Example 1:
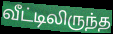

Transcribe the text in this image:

வீட்டிலிருந்த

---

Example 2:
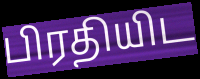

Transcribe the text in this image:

பிரதியிட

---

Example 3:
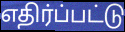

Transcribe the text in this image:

எதிர்ப்பட்டு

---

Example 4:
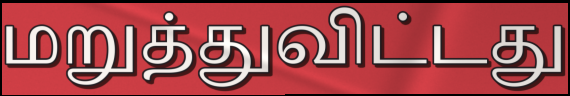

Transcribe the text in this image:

மறுத்துவிட்டது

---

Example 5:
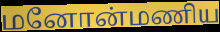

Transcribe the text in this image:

மனோன்மணிய